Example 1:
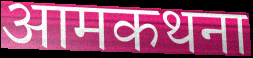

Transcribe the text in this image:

आमकथना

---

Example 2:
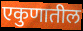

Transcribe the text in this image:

एकुणातील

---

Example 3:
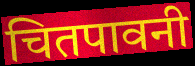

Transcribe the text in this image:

चितपावनी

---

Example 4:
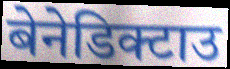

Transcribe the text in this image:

बेनेडिक्टाउ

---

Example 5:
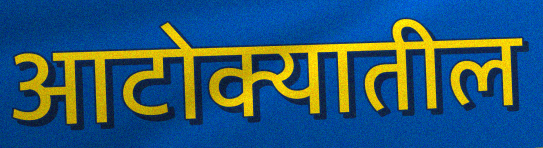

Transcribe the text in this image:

आटोक्यातील